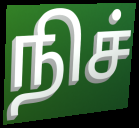
நிச்